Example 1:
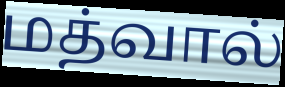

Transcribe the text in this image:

மத்வால்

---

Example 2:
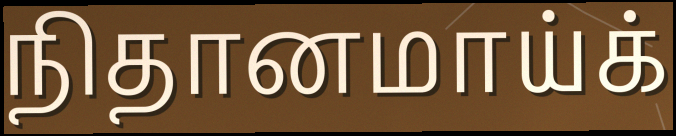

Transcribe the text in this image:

நிதானமாய்க்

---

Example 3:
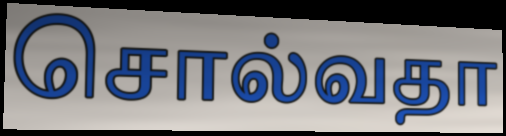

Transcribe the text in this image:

சொல்வதா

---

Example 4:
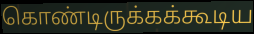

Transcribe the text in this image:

கொண்டிருக்கக்கூடிய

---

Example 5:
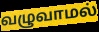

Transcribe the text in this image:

வழுவாமல்